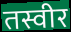
तस्‍वीर